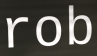
rob